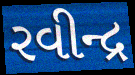
રવીન્દ્ર